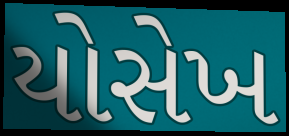
યોસેખ